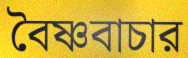
বৈষ্ণবাচার